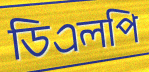
ডিএলপি